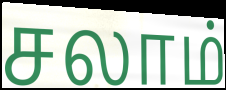
சலாம்